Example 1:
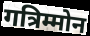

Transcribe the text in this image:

गत्रिम्मोन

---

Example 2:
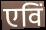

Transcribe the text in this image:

एविं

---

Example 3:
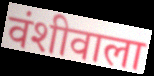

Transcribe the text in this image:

वंशीवाला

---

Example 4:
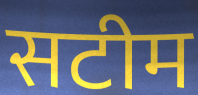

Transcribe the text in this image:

सटीम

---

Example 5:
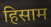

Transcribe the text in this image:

हिसाम